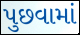
પુછવામાં